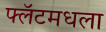
फ्लॅटमधला